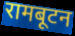
रामबूटन